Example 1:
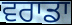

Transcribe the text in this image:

ਵਰਾਡਾ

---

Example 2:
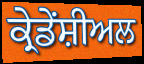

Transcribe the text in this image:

ਕ੍ਰੇਡੇਂਸ਼ੀਅਲ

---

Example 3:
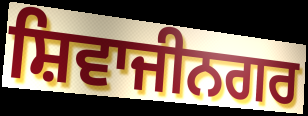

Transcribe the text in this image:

ਸ਼ਿਵਾਜੀਨਗਰ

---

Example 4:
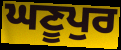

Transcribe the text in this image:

ਘਣੂਪੁਰ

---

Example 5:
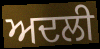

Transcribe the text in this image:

ਅਦਲੀ